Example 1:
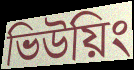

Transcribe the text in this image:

ভিউয়িং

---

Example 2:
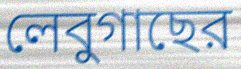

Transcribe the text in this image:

লেবুগাছের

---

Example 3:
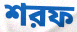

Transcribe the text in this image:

শরফ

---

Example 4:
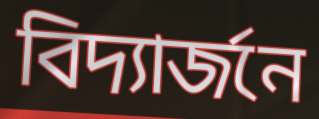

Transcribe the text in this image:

বিদ্যার্জনে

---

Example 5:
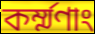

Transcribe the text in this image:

কর্ম্মণাং